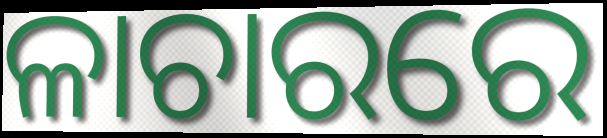
ଳାଚାରରେ